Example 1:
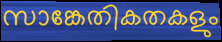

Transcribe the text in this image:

സാങ്കേതികതകളും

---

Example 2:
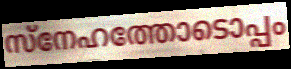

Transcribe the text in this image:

സ്നേഹത്തോടൊപ്പം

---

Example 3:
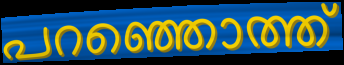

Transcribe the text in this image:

പറഞ്ഞൊത്ത്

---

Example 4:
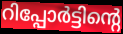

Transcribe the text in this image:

റിപ്പോർട്ടിന്റെ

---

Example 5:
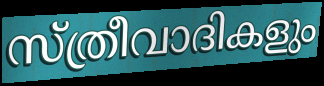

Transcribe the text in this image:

സ്ത്രീവാദികളും